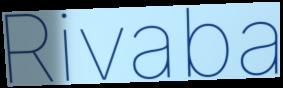
Rivaba